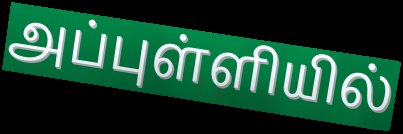
அப்புள்ளியில்